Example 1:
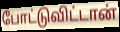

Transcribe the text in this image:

போட்டுவிட்டான்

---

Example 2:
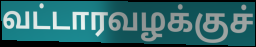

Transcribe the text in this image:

வட்டாரவழக்குச்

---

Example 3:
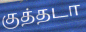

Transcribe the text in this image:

குத்தடா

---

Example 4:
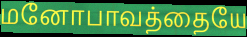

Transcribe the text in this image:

மனோபாவத்தையே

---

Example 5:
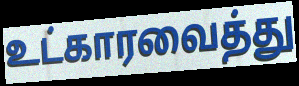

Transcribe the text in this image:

உட்காரவைத்து